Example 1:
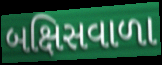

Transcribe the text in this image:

બક્ષિસવાળા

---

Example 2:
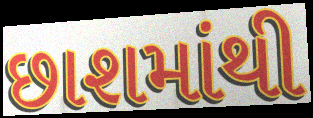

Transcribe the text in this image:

છાશમાંથી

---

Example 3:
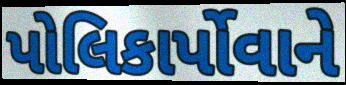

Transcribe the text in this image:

પોલિકાર્પોવાને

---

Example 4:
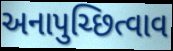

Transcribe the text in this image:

અનાપુચ્છિત્વાવ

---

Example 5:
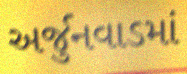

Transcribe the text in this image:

અર્જુનવાડમાં